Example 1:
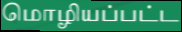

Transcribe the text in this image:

மொழியப்பட்ட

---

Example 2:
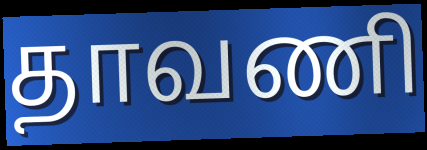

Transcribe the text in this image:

தாவணி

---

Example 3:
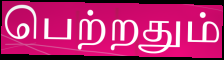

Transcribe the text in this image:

பெற்றதும்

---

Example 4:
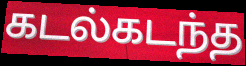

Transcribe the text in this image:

கடல்கடந்த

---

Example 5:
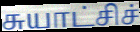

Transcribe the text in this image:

சுயாட்சிச்